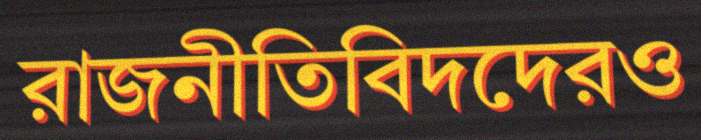
রাজনীতিবিদদেরও